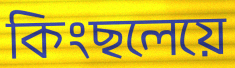
কিংছলেয়ে